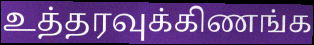
உத்தரவுக்கிணங்க